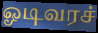
ஓடிவரச்